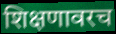
शिक्षणावरच